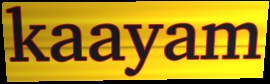
kaayam